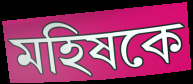
মহিষকে